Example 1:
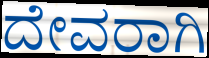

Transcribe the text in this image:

ದೇವರಾಗಿ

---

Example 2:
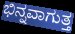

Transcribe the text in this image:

ಭಿನ್ನವಾಗುತ್ತ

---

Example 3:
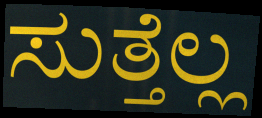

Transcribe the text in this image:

ಸುತ್ತೆಲ್ಲ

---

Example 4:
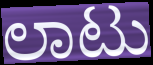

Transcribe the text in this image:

ಲಾಟು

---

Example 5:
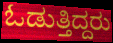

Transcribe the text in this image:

ಓಡುತ್ತಿದ್ದರು